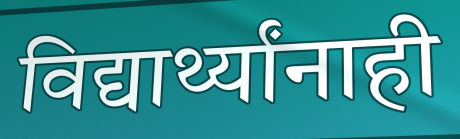
विद्यार्थ्यांनाही